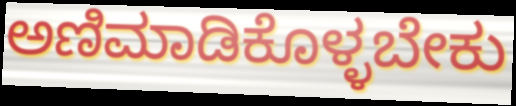
ಅಣಿಮಾಡಿಕೊಳ್ಳಬೇಕು